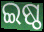
ଇଷ୍ଠ